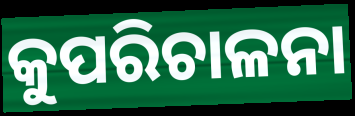
କୁପରିଚାଳନା